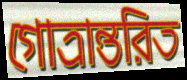
গোত্রান্তরিত